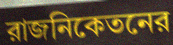
রাজনিকেতনের